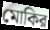
মোকির